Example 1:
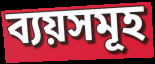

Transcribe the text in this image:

ব্যয়সমূহ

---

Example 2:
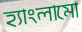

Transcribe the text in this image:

হ্যাংলামো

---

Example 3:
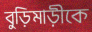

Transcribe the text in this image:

বুড়িমাড়ীকে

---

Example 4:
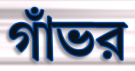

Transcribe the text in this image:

গাঁভর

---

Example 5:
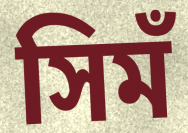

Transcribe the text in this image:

সিমঁ